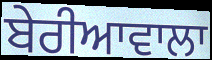
ਬੇਰੀਆਵਾਲਾ